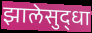
झालेसुद्धा